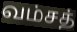
வம்சத்